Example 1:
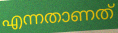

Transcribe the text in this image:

എന്നതാണത്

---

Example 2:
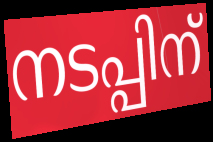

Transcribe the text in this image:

നടപ്പിന്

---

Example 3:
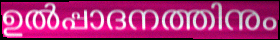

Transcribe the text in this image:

ഉൽപ്പാദനത്തിനും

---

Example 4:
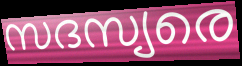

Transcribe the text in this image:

സദസ്യരെ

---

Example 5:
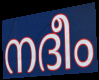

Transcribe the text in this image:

നദീം